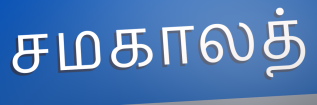
சமகாலத்